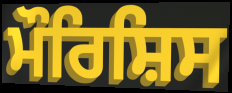
ਮੌਰਿਸ਼ਿਸ